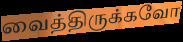
வைத்திருக்கவோ